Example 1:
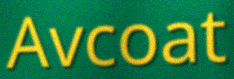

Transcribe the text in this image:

Avcoat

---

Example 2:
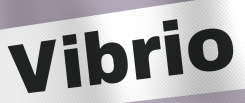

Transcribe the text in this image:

Vibrio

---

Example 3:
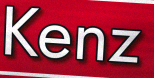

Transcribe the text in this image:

Kenz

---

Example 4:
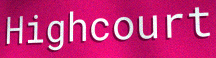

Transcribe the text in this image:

Highcourt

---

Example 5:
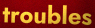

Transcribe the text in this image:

troubles